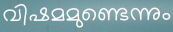
വിഷമമുണ്ടെന്നും